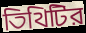
তিথিটির